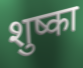
शुष्का